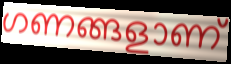
ഗണങ്ങളാണ്